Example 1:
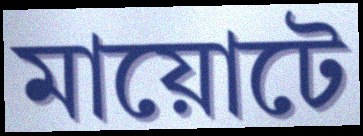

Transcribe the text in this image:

মায়োটে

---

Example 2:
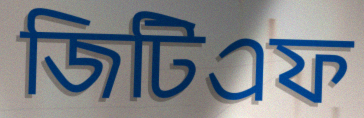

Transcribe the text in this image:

জিটিএফ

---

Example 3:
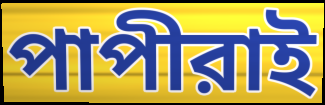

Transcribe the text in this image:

পাপীরাই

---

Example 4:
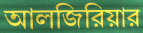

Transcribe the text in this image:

আলজিরিয়ার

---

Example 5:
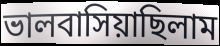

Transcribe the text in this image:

ভালবাসিয়াছিলাম